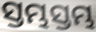
ସ୍ତମ୍ଭସ୍ତମ୍ଭ